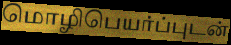
மொழிபெயர்ப்புடன்